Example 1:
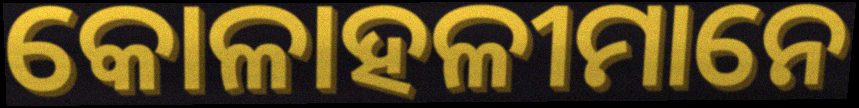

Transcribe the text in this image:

କୋଳାହଳୀମାନେ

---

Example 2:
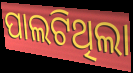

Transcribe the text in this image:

ପାଲଟିଥିଲା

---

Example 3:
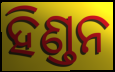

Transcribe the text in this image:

ହିଣ୍ଡନ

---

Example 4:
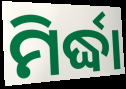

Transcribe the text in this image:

ମିର୍ଦ୍ଧା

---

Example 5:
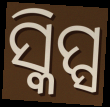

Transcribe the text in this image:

ସ୍କିପ୍ସ